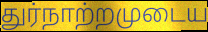
துர்நாற்றமுடைய